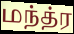
மந்த்ர